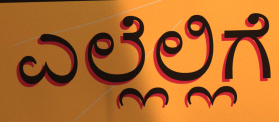
ಎಲ್ಲೆಲ್ಲಿಗೆ